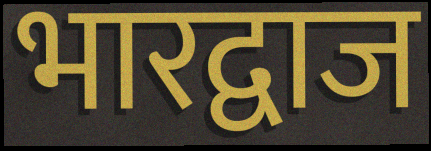
भारद्वाज